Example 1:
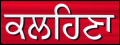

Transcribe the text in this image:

ਕਲਹਿਣਾ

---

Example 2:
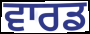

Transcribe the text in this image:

ਵਾਰਡ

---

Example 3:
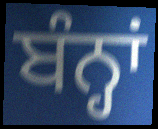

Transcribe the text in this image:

ਬੰਨ੍ਹਾਂ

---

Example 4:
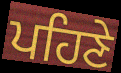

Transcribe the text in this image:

ਪਹਿਣੇ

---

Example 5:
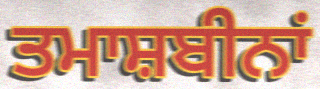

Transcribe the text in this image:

ਤਮਾਸ਼ਬੀਨਾਂ